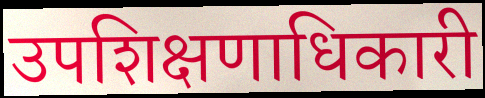
उपशिक्षणाधिकारी